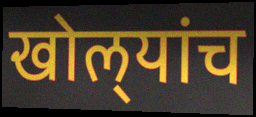
खोल्यांच